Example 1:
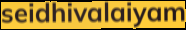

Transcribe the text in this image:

seidhivalaiyam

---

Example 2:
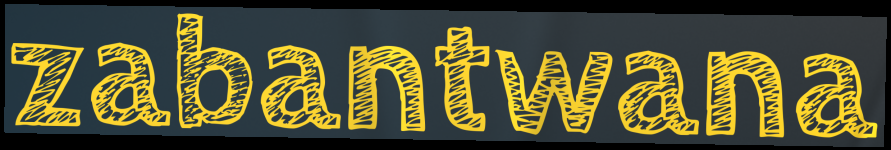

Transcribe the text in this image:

zabantwana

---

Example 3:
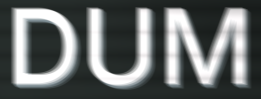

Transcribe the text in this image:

DUM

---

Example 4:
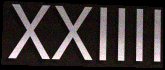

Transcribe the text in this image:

XXIIII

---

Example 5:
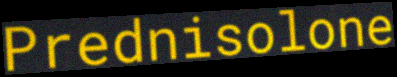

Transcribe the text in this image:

Prednisolone